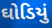
ઘોડિયું